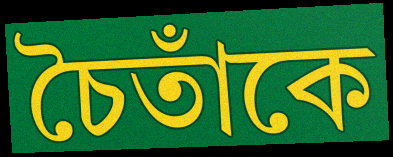
চৈতাঁকে